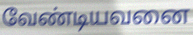
வேண்டியவனை